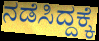
ನಡೆಸಿದ್ದಕ್ಕೆ